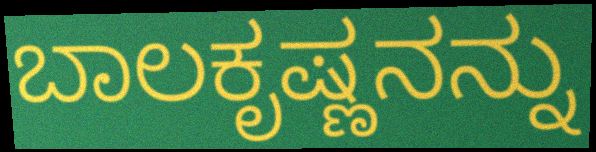
ಬಾಲಕೃಷ್ಣನನ್ನು